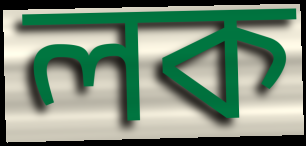
লক